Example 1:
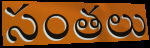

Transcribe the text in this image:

సంతలు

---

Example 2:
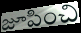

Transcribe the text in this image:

జూపించి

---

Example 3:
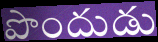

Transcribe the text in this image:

పొందుడు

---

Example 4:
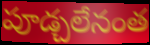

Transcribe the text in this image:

పూడ్చలేనంత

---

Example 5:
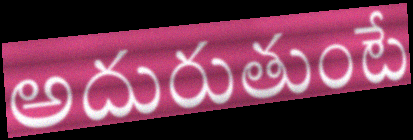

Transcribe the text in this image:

అదురుతుంటే